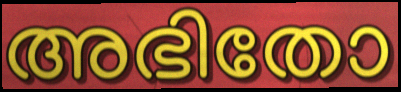
അഭിതോ